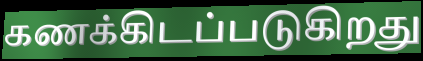
கணக்கிடப்படுகிறது